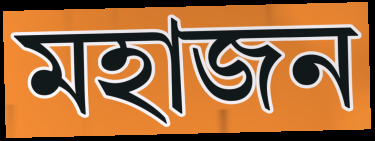
মহাজন